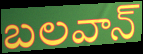
బలవాన్